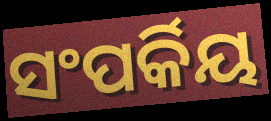
ସଂପର୍କିୟ